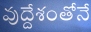
వుద్దేశంతోనే